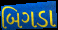
બિગડા